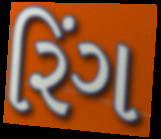
રિંગ